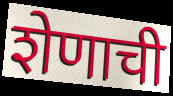
शेणाची